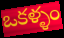
ఒకళ్ళం